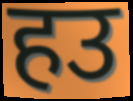
हउ